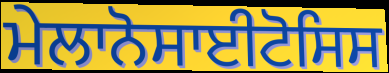
ਮੇਲਾਨੋਸਾਈਟੋਸਿਸ